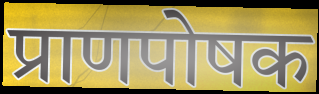
प्राणपोषक